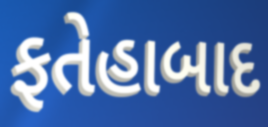
ફતેહાબાદ